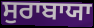
ਸੁਰਾਬਾਯਾ